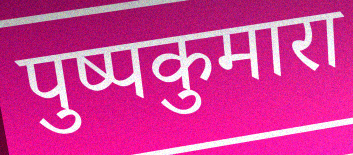
पुष्पकुमारा